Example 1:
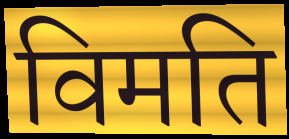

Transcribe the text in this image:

विमति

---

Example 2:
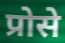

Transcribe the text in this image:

प्रोसे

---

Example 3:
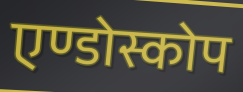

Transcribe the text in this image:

एण्डोस्कोप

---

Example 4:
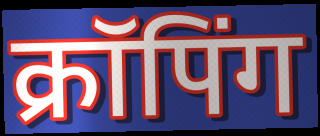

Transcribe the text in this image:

क्रॉपिंग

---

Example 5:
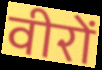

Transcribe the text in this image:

वीरों